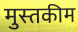
मुस्तकीम